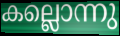
കല്ലൊന്നു